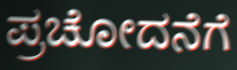
ಪ್ರಚೋದನೆಗೆ